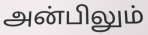
அன்பிலும்